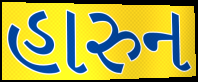
હારુન